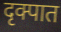
दृक्पात